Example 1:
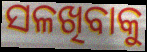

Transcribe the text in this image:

ସଳଖିବାକୁ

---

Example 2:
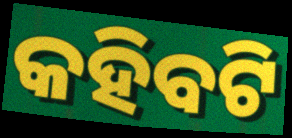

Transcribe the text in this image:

କହିବଟି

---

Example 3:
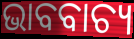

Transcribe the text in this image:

ଭାବବାଚ୍ୟ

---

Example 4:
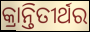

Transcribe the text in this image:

କ୍ରାନ୍ତିତୀର୍ଥର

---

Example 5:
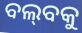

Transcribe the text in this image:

ବଲ୍‌ବକୁ